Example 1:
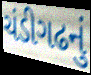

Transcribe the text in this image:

ચંડીગઢનું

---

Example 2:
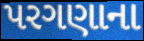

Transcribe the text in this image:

પરગણાના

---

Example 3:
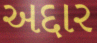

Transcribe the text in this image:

અદ્દાર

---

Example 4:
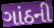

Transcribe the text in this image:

ગાંઠની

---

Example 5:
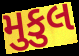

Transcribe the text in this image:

મુકુલ